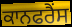
ਕਾਨਫਰੈਂਸ